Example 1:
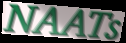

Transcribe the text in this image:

NAATs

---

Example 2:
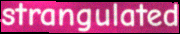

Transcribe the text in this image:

strangulated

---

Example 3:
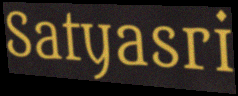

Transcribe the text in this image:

Satyasri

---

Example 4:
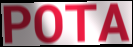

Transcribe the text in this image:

POTA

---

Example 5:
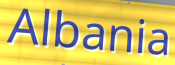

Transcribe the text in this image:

Albania